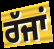
ਰੱਜਾਂ